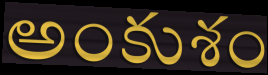
అంకుశం